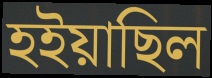
হইয়াছিল